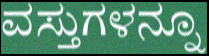
ವಸ್ತುಗಳನ್ನೂ